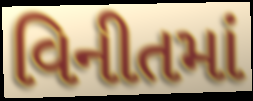
વિનીતમાં